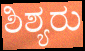
ಶಿಶ್ಯರು